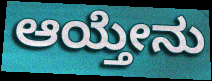
ಆಯ್ತೇನು